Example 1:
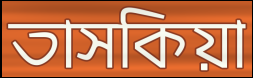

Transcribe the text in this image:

তাসকিয়া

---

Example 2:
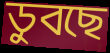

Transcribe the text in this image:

ডুবছে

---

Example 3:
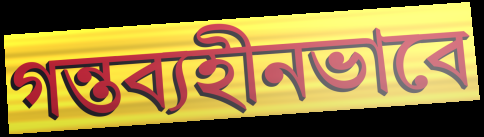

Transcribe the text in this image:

গন্তব্যহীনভাবে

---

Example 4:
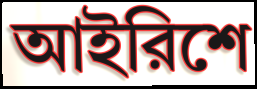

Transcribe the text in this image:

আইরিশে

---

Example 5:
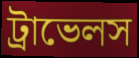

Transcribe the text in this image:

ট্রাভেলস